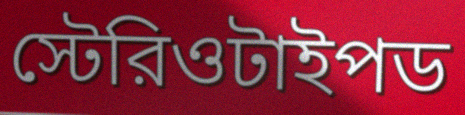
স্টেরিওটাইপড